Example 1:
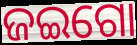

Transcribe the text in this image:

ଜଇଗୋ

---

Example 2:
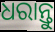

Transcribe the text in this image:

ଧରାନ୍ତୁ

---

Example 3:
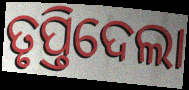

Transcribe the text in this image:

ତୃପ୍ତିଦେଲା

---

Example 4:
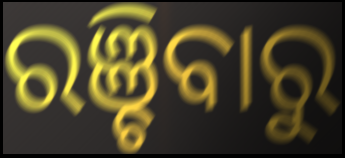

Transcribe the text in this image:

ରଞ୍ଚିବାରୁ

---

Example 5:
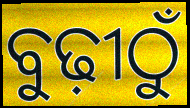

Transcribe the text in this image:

ବୁଢ଼ୀଠୁଁ